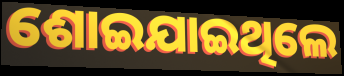
ଶୋଇଯାଇଥିଲେ